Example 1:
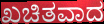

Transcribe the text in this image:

ಖಚಿತವಾದ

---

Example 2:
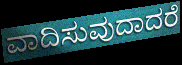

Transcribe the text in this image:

ವಾದಿಸುವುದಾದರೆ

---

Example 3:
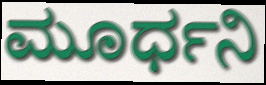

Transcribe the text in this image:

ಮೂರ್ಧನಿ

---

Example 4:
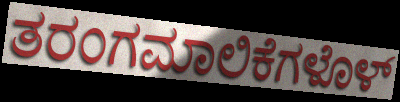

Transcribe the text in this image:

ತರಂಗಮಾಲಿಕೆಗಳೊಳ್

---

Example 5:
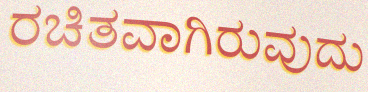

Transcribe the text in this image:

ರಚಿತವಾಗಿರುವುದು